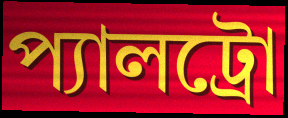
প্যালট্রো